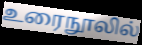
உரைநூலில்